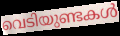
വെടിയുണ്ടകൾ